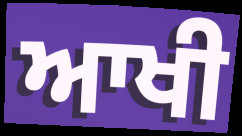
ਆਖੀ